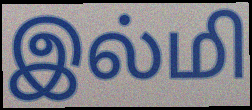
இல்மி